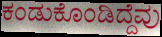
ಕಂಡುಕೊಂಡಿದ್ದೆವು